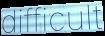
difficult